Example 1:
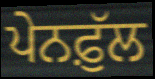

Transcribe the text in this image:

ਪੇਨਫ਼ੁੱਲ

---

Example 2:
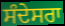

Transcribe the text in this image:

ਸੰਦੇਸਰਾ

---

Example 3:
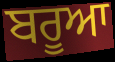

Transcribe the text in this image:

ਬਰੂਆ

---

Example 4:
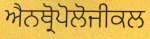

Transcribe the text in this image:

ਐਨਥ੍ਰੋਪੋਲੋਜੀਕਲ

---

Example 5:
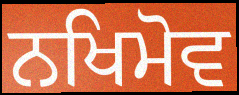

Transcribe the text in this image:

ਨਖਿਮੋਵ